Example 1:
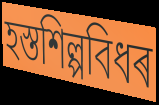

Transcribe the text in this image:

হস্তশিল্পবিধৰ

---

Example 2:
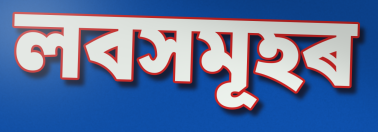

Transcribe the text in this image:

লবসমূহৰ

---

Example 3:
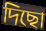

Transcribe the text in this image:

দিছো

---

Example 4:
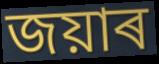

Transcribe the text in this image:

জয়াৰ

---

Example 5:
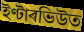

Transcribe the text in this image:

ইণ্টাৰভিউত